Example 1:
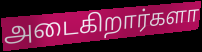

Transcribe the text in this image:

அடைகிறார்களா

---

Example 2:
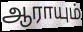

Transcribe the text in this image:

ஆராயும்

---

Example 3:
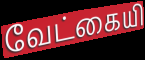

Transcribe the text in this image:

வேட்கையி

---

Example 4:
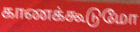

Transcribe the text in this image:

காணக்கூடுமோ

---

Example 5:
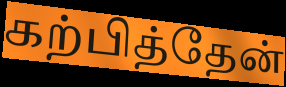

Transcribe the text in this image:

கற்பித்தேன்